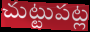
చుట్టుపట్ల